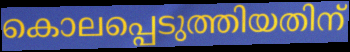
കൊലപ്പെടുത്തിയതിന്